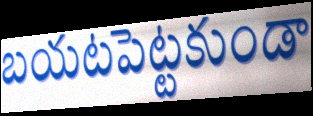
బయటపెట్టకుండా